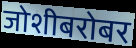
जोशीबरोबर